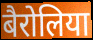
बैरोलिया